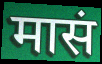
मासं